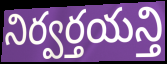
నిర్వర్తయన్తి